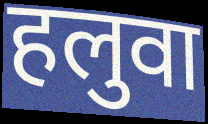
हलुवा